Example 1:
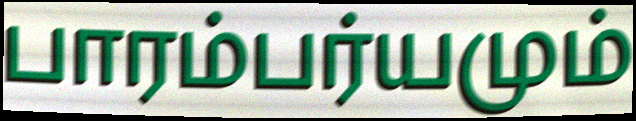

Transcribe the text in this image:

பாரம்பர்யமும்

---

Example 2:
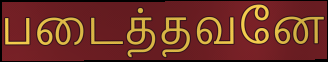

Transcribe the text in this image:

படைத்தவனே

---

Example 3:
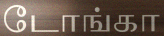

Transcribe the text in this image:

டோங்கா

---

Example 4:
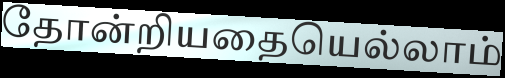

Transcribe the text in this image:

தோன்றியதையெல்லாம்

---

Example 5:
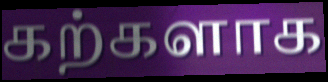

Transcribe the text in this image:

கற்களாக